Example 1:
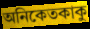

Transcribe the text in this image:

অনিকেতকাকু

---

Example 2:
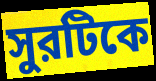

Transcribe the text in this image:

সুরটিকে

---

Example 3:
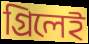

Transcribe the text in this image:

গ্রিলেই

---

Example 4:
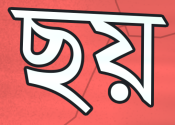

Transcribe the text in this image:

ছয়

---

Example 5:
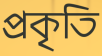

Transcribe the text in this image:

প্রকৃতি